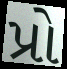
પ્રો